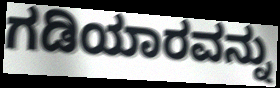
ಗಡಿಯಾರವನ್ನು